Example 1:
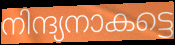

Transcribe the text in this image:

നിന്ദ്യനാകട്ടെ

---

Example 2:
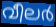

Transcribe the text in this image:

വീലർ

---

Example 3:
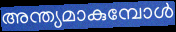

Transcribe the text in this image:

അന്ത്യമാകുമ്പോൾ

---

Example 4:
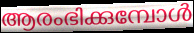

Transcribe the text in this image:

ആരംഭിക്കുമ്പോൾ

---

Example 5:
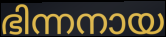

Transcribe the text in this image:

ഭിന്നനായ